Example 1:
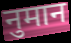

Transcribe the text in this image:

नुमान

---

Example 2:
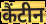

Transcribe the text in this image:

कैंटीन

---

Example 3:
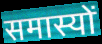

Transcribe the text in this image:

समास्यों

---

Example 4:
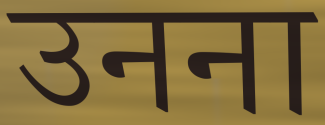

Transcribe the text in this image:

उनना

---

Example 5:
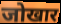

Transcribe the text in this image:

जोखार